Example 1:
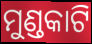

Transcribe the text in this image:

ମୁଣ୍ଡକାଟି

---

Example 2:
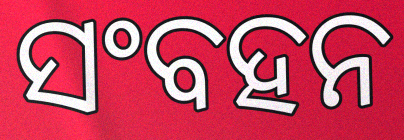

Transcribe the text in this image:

ସଂବହନ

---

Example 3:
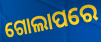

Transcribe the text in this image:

ଗୋଲାପରେ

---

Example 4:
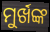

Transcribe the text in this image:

ମୁର୍ଖଙ୍କ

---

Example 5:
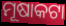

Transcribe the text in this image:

ମୂଷାକଟା